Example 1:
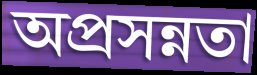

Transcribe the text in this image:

অপ্রসন্নতা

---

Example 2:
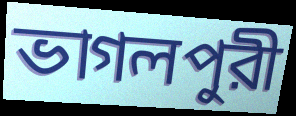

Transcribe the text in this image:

ভাগলপুরী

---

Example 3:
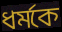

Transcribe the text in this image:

ধর্মকে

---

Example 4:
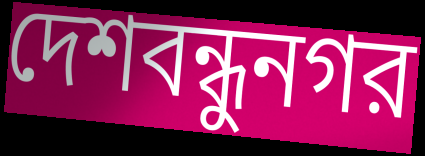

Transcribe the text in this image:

দেশবন্ধুনগর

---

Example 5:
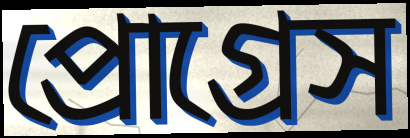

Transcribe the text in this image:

প্রোগ্রেস